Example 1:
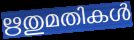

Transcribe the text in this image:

ഋതുമതികൾ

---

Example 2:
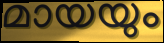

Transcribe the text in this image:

മായയും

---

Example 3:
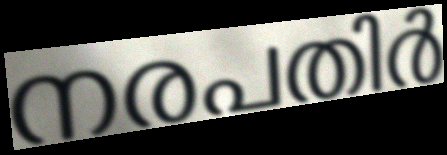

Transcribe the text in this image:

നരപതിർ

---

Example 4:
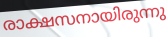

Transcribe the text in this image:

രാക്ഷസനായിരുന്നു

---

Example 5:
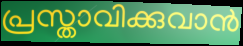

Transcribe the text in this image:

പ്രസ്താവിക്കുവാൻ